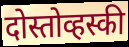
दोस्तोव्हस्की